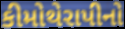
કીમોથેરાપીનો